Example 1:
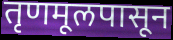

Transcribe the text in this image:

तृणमूलपासून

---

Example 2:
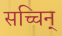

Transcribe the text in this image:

सच्चिन्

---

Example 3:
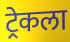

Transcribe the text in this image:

ट्रेकला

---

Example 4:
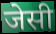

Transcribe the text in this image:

जेसी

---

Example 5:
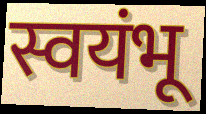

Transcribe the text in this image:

स्वयंभू